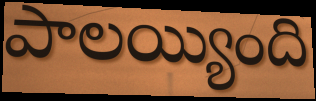
పాలయ్యింది